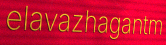
elavazhagantm